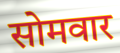
सोमवार